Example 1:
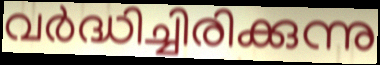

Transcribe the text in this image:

വർദ്ധിച്ചിരിക്കുന്നു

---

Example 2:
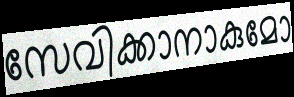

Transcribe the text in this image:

സേവിക്കാനാകുമോ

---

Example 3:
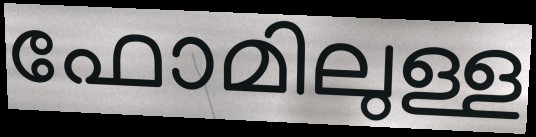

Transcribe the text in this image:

ഫോമിലുള്ള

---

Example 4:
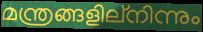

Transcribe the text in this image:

മന്ത്രങ്ങളില്നിന്നും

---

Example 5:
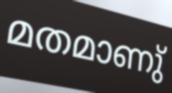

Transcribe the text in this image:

മതമാണു്